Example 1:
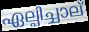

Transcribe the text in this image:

ഏല്പിച്ചാല്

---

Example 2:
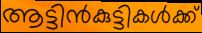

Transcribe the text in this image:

ആട്ടിൻകുട്ടികൾക്ക്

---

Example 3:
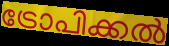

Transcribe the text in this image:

ട്രോപിക്കൽ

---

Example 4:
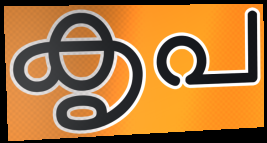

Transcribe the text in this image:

കൃപ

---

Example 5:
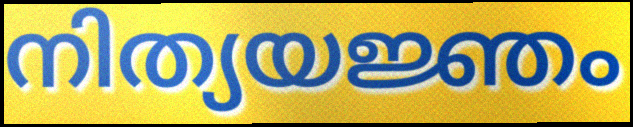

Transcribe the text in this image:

നിത്യയജ്ഞം